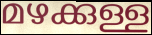
മഴക്കുള്ള